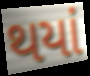
થયાં